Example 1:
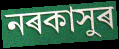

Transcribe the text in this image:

নৰকাসুৰ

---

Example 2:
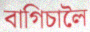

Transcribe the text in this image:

বাগিচালৈ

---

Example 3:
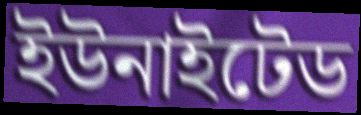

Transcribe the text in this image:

ইউনাইটেড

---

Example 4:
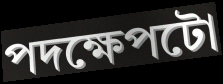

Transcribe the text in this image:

পদক্ষেপটো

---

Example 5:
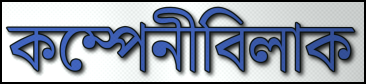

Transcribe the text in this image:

কম্পেনীবিলাক